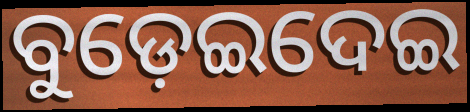
ବୁଡ଼େଇଦେଇ